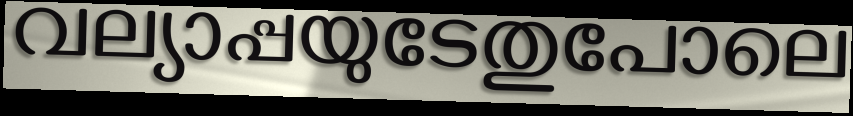
വല്യാപ്പയുടേതുപോലെ